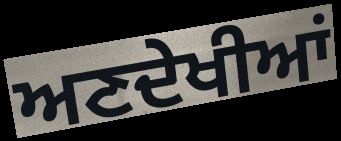
ਅਣਦੇਖੀਆਂ